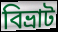
বিভ্রাট